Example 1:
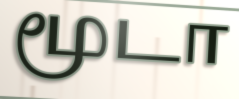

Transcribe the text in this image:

மூடா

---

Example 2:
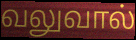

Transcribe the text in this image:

வலுவால்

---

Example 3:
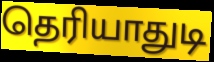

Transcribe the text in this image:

தெரியாதுடி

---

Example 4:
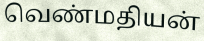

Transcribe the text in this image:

வெண்மதியன்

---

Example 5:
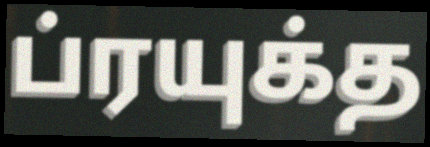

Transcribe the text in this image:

ப்ரயுக்த